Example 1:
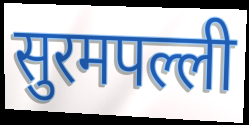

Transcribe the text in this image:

सुरमपल्ली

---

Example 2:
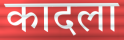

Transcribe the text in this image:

कादला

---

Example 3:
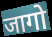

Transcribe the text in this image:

जागो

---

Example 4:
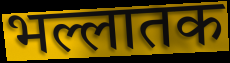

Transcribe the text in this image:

भल्लातक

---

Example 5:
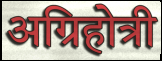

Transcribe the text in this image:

अग्रिहोत्री